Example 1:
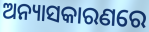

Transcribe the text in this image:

ଅନ୍ୟାସକାରଣରେ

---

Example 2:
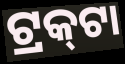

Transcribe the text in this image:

ଟ୍ରକ୍‌ଟା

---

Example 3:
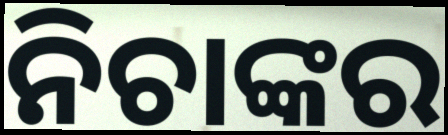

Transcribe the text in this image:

ନିଚାଙ୍କର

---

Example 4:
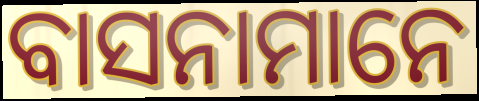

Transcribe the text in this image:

ବାସନାମାନେ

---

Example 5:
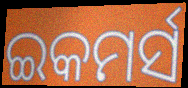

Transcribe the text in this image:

ଇକମର୍ସ